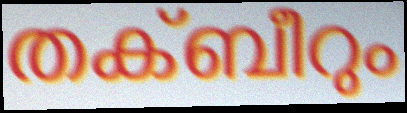
തക്ബീറും